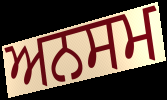
ਅਨਸਮ